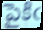
పైకిఁ